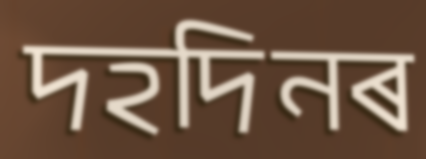
দহদিনৰ